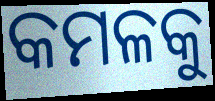
କମଳକୁ